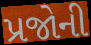
પ્રજોની